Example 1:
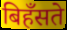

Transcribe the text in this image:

बिहँसते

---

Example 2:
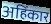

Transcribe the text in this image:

अहिंकार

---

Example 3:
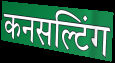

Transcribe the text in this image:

कनसल्टिंग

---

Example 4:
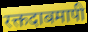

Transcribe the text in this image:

रक्तदाबमापी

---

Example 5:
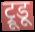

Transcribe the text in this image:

ट्रूडू